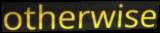
otherwise